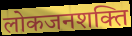
लोकजनशक्ति